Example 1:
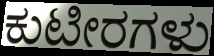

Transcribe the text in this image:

ಕುಟೀರಗಳು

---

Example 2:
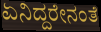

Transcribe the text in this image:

ಏನಿದ್ದರೇನಂತೆ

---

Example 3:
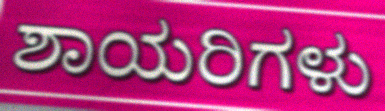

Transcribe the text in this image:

ಶಾಯರಿಗಳು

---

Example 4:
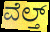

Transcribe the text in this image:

ವೆಲ್ತ್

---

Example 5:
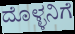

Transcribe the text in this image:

ದೊಳ್ಳನಿಗೆ